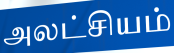
அலட்சியம்